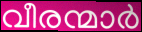
വീരന്മാർ